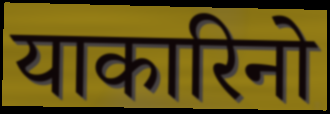
याकारिनो